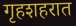
गृहशहरात